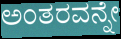
ಅಂತರವನ್ನೇ